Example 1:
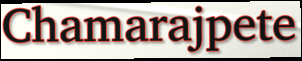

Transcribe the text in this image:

Chamarajpete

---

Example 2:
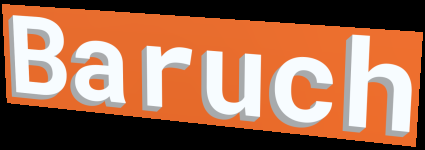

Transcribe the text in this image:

Baruch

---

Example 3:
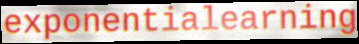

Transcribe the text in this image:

exponentialearning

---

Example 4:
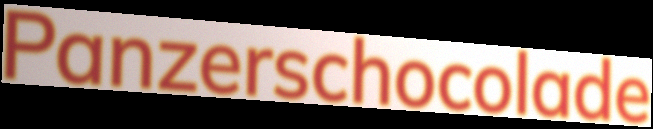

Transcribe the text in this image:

Panzerschocolade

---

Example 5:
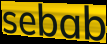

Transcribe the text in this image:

sebab